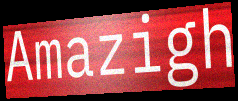
Amazigh